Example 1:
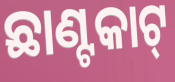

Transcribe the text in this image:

ଛାଣ୍ଟକାଟ୍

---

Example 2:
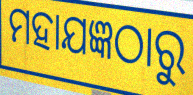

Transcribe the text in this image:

ମହାଯଜ୍ଞଠାରୁ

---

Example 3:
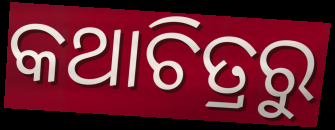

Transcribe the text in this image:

କଥାଚିତ୍ରରୁ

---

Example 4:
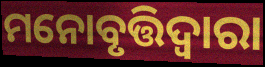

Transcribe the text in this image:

ମନୋବୃତ୍ତିଦ୍ଵାରା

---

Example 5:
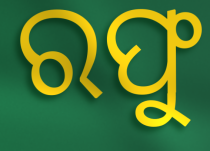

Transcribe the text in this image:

ରଫୁ